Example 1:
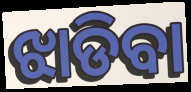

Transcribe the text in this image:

ଝାଡିବା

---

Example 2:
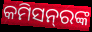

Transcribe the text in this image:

କମିସନ୍‍ରଙ୍କ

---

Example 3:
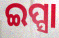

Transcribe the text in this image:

ଇପ୍ସା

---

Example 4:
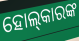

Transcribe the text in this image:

ହୋଲ୍‍କାରଙ୍କ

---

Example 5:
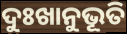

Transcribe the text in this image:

ଦୁଃଖାନୁଭୂତି